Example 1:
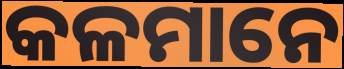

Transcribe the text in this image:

କଳମାନେ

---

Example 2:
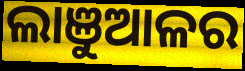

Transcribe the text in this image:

ଲାଞୁଆଳର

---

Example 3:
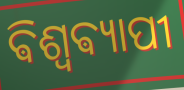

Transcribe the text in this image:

ଵିଶ୍ଵଵ୍ୟାପୀ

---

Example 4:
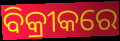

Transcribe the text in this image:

ବିକ୍ରୀକରେ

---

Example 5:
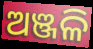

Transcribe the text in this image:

ଅଞ୍ଜଳି